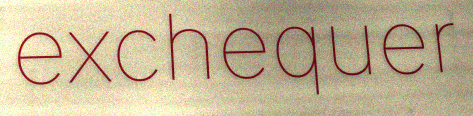
exchequer